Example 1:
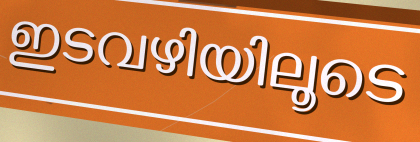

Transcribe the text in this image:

ഇടവഴിയിലൂടെ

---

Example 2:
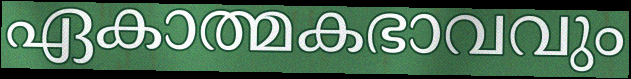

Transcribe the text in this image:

ഏകാത്മകഭാവവും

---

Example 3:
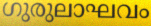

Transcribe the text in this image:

ഗുരുലാഘവം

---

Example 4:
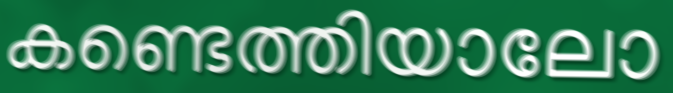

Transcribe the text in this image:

കണ്ടെത്തിയാലോ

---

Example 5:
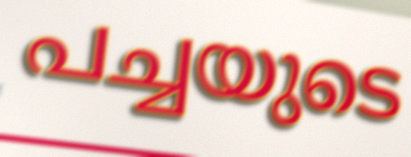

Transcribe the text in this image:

പച്ചയുടെ